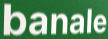
banale